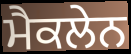
ਮੈਕਲੇਨ